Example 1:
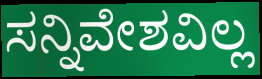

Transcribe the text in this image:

ಸನ್ನಿವೇಶವಿಲ್ಲ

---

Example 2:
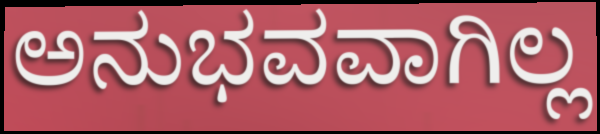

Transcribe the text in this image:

ಅನುಭವವಾಗಿಲ್ಲ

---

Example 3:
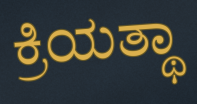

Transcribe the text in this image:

ಕ್ರಿಯತ್ಥಾ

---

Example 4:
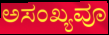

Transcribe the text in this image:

ಅಸಂಖ್ಯವೂ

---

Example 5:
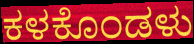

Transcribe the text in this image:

ಕಳಕೊಂಡಳು